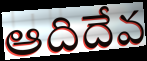
ఆదిదేవ